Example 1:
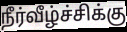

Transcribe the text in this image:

நீர்வீழ்ச்சிக்கு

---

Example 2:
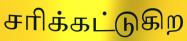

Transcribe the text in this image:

சரிக்கட்டுகிற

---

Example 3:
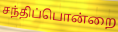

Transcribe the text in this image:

சந்திப்பொன்றை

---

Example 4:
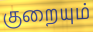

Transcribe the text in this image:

குறையும்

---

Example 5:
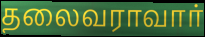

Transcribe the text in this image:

தலைவராவார்